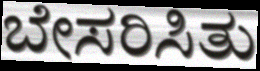
ಬೇಸರಿಸಿತು